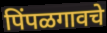
पिंपळगावचे